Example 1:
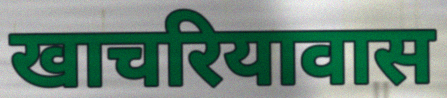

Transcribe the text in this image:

खाचरियावास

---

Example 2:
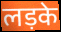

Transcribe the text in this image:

लड़के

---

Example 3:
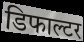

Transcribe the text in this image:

डिफाल्टर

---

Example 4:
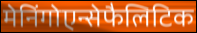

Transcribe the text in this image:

मेनिंगोएन्सेफैलिटिक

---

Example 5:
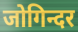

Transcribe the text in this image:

जोगिन्दर